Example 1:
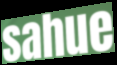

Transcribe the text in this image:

sahue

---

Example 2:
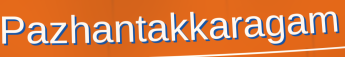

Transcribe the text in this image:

Pazhantakkaragam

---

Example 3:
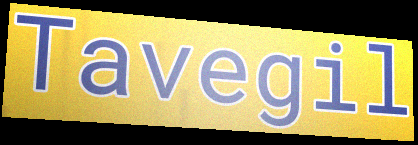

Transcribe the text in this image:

Tavegil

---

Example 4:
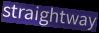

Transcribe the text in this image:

straightway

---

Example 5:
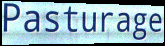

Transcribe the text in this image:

Pasturage